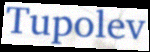
Tupolev